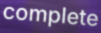
complete